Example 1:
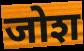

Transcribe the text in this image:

जोश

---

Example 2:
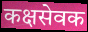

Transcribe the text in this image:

कक्षसेवक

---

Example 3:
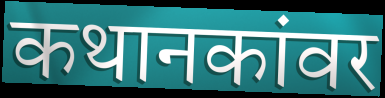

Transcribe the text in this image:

कथानकांवर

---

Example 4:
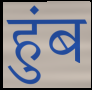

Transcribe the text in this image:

हुंब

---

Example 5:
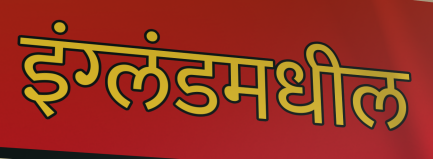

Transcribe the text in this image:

इंग्‍लंडमधील